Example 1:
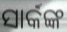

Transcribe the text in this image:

ସାର୍କଙ୍କ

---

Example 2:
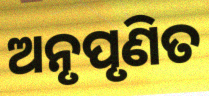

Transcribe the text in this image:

ଅନୃପୃଣିତ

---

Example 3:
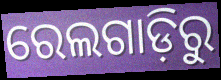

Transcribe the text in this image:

ରେଲଗାଡ଼ିରୁ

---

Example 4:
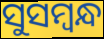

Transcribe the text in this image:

ସୁସମ୍ବନ୍ଧ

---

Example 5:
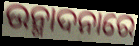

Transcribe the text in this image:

ଉନ୍ମାଦନାରେ